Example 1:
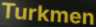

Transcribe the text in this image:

Turkmen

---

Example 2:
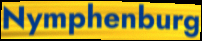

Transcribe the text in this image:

Nymphenburg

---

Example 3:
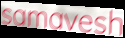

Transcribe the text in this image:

samavesh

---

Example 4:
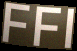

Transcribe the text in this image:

FFI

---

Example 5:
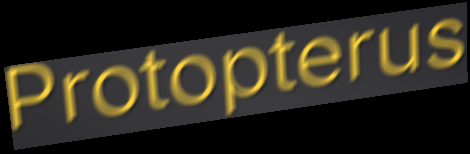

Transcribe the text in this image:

Protopterus